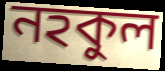
নহকুল